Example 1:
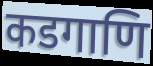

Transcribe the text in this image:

कडगाणि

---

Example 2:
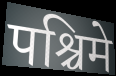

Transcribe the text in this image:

पश्चिमे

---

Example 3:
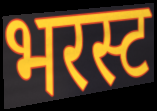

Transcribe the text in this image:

भरस्ट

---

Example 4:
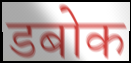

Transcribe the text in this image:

डबोक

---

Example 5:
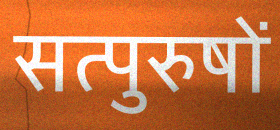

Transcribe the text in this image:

सत्पुरुषों